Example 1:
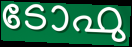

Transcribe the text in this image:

ടോഫു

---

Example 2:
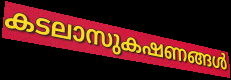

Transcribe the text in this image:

കടലാസുകഷണങ്ങൾ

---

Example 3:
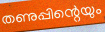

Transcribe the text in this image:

തണുപ്പിന്റെയും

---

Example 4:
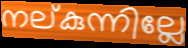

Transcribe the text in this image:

നല്കുന്നില്ലേ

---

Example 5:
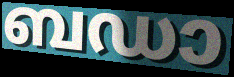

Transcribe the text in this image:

ബഡാ